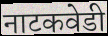
नाटकवेडी